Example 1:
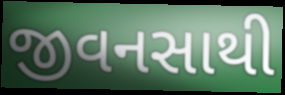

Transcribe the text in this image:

જીવનસાથી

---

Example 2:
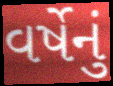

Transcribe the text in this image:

વર્ષેનું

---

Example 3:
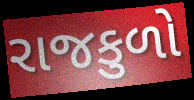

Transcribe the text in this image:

રાજકુળો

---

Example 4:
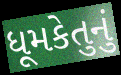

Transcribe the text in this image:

ધૂમકેતુનું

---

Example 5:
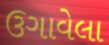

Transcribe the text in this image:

ઉગાવેલા